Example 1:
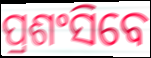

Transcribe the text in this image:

ପ୍ରଶଂସିବେ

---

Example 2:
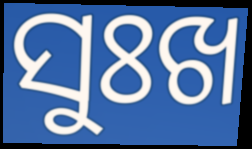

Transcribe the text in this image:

ସୁଃଖ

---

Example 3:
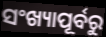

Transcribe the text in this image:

ସଂଖ୍ୟାପୂର୍ବରୁ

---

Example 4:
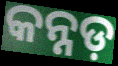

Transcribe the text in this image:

କନ୍ନଡ଼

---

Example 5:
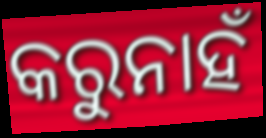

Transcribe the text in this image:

କରୁନାହଁ